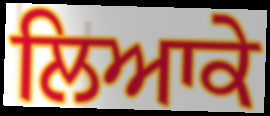
ਲਿਆਕੇ